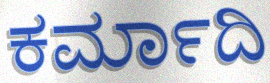
ಕರ್ಮಾದಿ